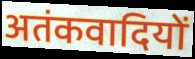
अतंकवादियों